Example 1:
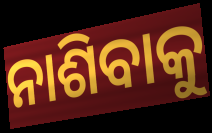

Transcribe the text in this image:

ନାଶିବାକୁ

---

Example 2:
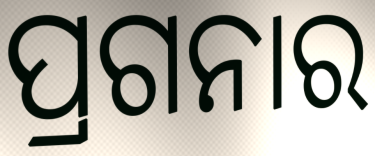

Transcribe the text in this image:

ପ୍ରଗନାର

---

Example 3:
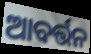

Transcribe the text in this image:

ଆବର୍ତ୍ତନ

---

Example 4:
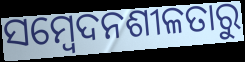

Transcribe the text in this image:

ସମ୍ବେଦନଶୀଳତାରୁ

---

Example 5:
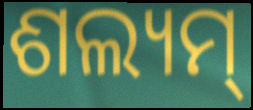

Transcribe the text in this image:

ଶଲ୍ୟମ୍